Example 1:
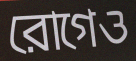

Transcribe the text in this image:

রোগেও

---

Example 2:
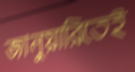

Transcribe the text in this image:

জানুয়ারিতেই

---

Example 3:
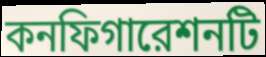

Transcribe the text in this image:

কনফিগারেশনটি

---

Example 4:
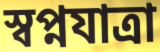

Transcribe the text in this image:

স্বপ্নযাত্রা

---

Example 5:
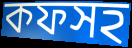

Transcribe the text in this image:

কফসহ